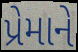
પ્રેમાને